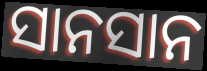
ସାନସାନ